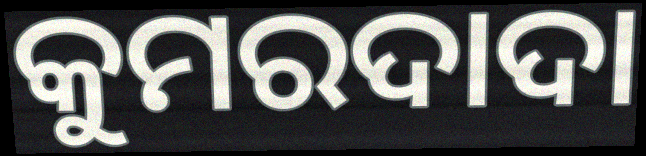
କୁମରଦାଦା